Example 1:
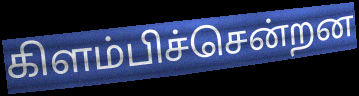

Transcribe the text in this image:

கிளம்பிச்சென்றன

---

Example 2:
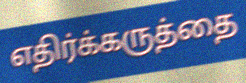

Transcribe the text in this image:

எதிர்க்கருத்தை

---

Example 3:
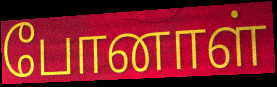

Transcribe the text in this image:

போனாள்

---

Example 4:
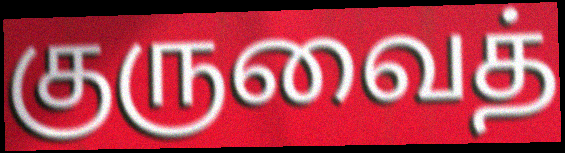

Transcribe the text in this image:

குருவைத்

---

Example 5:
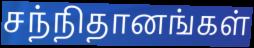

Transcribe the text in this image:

சந்நிதானங்கள்